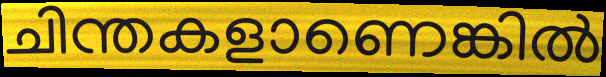
ചിന്തകളാണെങ്കിൽ